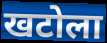
खटोला